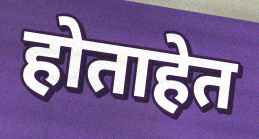
होताहेत